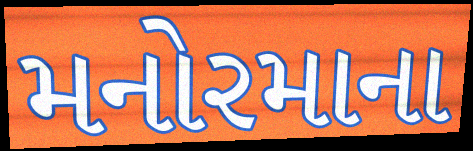
મનોરમાના